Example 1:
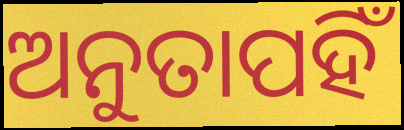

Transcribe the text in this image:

ଅନୁତାପହିଁ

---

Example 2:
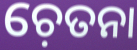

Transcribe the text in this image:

ଚ଼େତନା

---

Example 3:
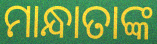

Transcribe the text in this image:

ମାନ୍ଧାତାଙ୍କ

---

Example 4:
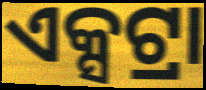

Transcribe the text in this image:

ଏକ୍ସଟ୍ରା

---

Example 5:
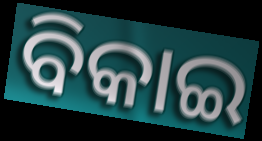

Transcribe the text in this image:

ବିକାଇ